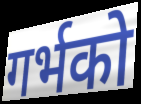
गर्भको